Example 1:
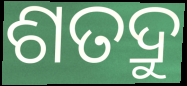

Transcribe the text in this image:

ଶତଦ୍ରୁ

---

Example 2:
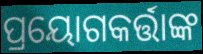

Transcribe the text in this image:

ପ୍ରୟୋଗକର୍ତ୍ତାଙ୍କ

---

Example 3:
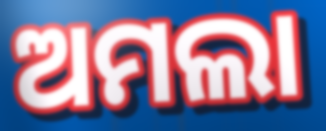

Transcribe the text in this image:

ଅମଲା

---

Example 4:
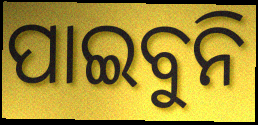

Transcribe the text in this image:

ପାଇବୁନି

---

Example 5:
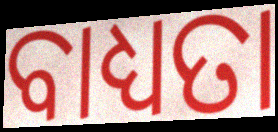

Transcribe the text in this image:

ବାଧ୍ୟତା